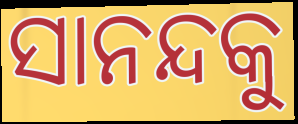
ସାନନ୍ଦକୁ